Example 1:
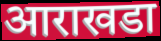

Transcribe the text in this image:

आराखडा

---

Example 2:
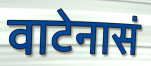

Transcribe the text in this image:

वाटेनासं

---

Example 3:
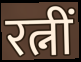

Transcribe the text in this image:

रत्नीं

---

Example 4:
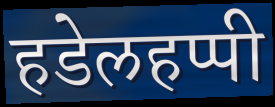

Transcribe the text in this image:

हडेलहप्पी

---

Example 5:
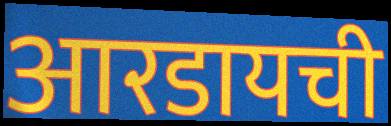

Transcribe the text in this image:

आरडायची